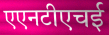
एएनटीएचई